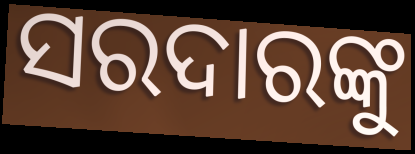
ସରଦାରଙ୍କୁ